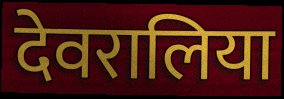
देवरालिया